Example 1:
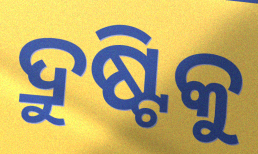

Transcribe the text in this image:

ଦ୍ରୁଷ୍ଟିକୁ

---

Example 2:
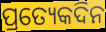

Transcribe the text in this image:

ପ୍ରତ୍ୟେକଦିନ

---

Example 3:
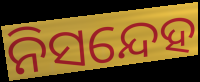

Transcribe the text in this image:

ନିସନ୍ଦେହ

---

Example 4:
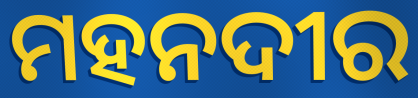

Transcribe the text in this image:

ମହନଦୀର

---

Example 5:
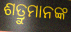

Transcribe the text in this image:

ଶତ୍ରୁମାନଙ୍କ